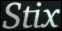
Stix